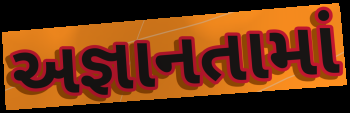
અજ્ઞાનતામાં